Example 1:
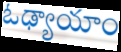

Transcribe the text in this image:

ఓఢ్యాయాం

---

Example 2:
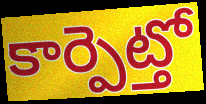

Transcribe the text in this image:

కార్పెట్తో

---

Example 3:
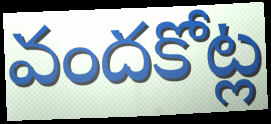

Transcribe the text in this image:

వందకోట్ల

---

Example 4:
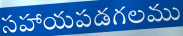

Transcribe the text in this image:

సహాయపడగలము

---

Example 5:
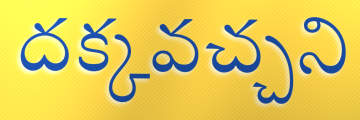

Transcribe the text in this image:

దక్కవచ్చని